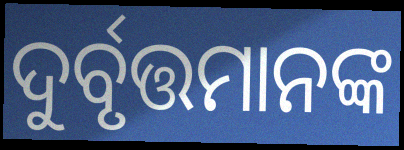
ଦୁର୍ବୃତ୍ତମାନଙ୍କ